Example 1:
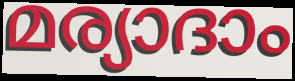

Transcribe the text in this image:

മര്യാദാം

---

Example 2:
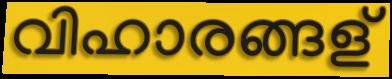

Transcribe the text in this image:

വിഹാരങ്ങള്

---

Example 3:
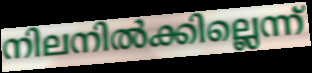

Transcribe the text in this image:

നിലനിൽക്കില്ലെന്ന്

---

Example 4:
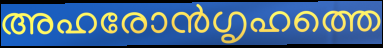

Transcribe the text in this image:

അഹരോൻഗൃഹത്തെ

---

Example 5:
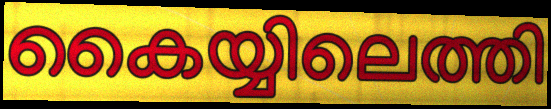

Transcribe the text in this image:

കൈയ്യിലെത്തി